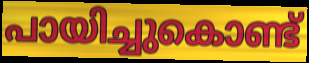
പായിച്ചുകൊണ്ട്